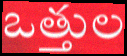
ఒత్తుల